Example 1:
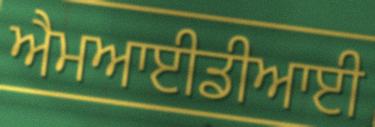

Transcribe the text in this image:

ਐਮਆਈਡੀਆਈ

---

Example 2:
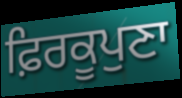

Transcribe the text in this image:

ਫ਼ਿਰਕੂਪੁਣਾ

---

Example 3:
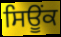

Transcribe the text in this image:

ਸਿਊਂਕ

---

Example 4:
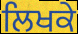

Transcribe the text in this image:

ਲਿਖਕੇ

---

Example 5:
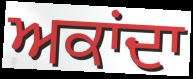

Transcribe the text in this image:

ਅਕਾਂਦਾ